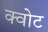
क्वोट